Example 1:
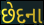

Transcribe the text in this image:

છેદના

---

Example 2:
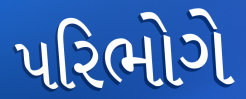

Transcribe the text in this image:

પરિભોગે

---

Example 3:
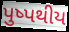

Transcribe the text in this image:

પુષ્પથીય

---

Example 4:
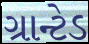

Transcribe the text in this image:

ગ્રાન્ટેડ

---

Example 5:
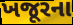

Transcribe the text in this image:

ખજૂરના